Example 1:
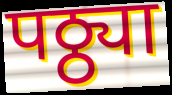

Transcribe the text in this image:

पठ्ठ्या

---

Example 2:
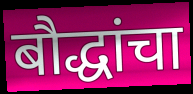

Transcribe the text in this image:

बौद्धांचा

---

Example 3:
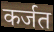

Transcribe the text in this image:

कर्जत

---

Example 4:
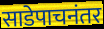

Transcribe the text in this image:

साडेपाचनंतर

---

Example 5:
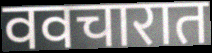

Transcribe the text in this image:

ववचारात